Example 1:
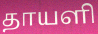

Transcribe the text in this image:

தாயளி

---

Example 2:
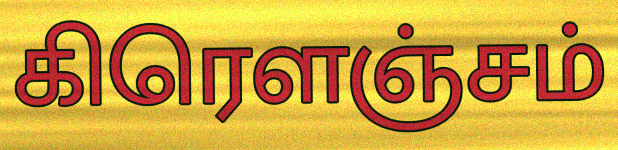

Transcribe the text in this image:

கிரௌஞ்சம்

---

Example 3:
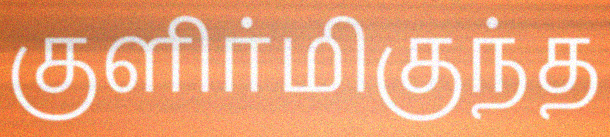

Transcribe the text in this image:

குளிர்மிகுந்த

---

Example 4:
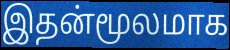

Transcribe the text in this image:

இதன்மூலமாக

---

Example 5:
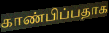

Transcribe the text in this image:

காண்பிப்பதாக